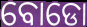
ବୋଡୋ